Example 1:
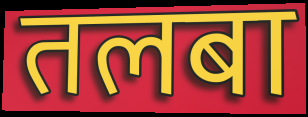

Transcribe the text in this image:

तलबा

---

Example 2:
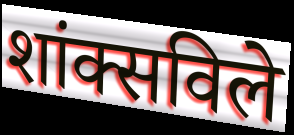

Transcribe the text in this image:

शांक्सविले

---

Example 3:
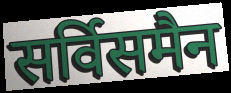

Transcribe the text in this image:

सर्विसमैन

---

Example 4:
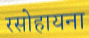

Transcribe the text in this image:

रसोहायना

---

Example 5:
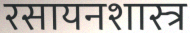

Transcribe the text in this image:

रसायनशास्त्र